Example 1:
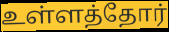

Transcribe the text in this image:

உள்ளத்தோர்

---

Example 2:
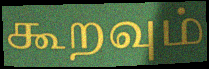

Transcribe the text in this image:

கூறவும்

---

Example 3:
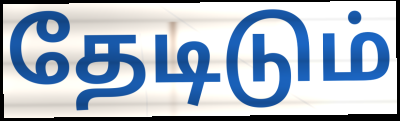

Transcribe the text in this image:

தேடிடும்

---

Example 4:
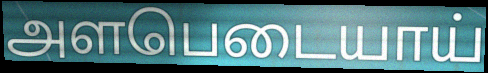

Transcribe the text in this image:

அளபெடையாய்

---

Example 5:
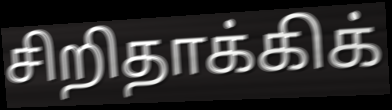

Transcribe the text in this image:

சிறிதாக்கிக்